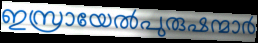
ഇസ്രായേൽപുരുഷന്മാർ